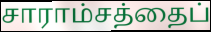
சாராம்சத்தைப்